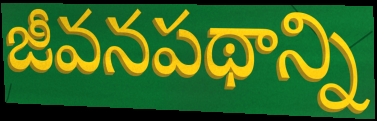
జీవనపథాన్ని